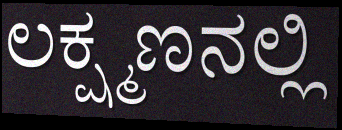
ಲಕ್ಷ್ಮಣನಲ್ಲಿ